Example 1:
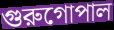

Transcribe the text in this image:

গুরুগোপাল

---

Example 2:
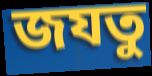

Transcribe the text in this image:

জযতু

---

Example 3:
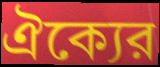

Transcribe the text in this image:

ঐক্যের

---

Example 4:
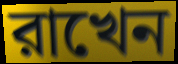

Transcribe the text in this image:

রাখেন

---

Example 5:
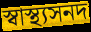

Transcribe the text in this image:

স্বাস্থ্যসনদ